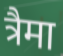
त्रैमा